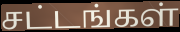
சட்டங்கள்